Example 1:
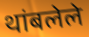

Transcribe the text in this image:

थांबलेले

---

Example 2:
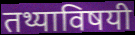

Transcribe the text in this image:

तथ्याविषयी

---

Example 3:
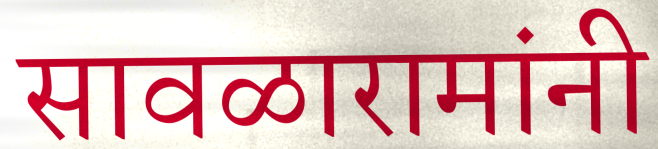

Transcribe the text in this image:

सावळारामांनी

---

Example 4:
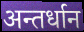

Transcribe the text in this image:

अन्तर्धान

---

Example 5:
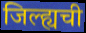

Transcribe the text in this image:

जिल्ह्यची